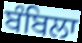
ਬੰਬਿਲਾ